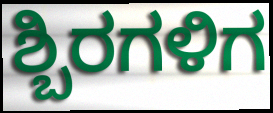
ಶ್ಬಿರಗಳಿಗ